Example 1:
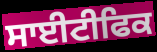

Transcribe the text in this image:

ਸਾਈਟੀਫਿਕ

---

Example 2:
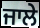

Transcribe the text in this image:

ਜਾਲੇ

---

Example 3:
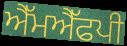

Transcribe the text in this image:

ਐੱਮਐੱਫਪੀ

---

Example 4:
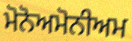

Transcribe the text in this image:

ਮੋਨੋਅਮੋਨੀਅਮ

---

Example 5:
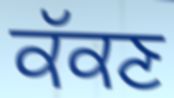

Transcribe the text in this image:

ਕੱਕਣ